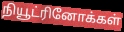
நியூட்ரினோக்கள்